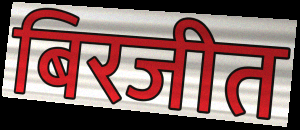
बिरजीत